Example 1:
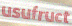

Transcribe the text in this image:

usufruct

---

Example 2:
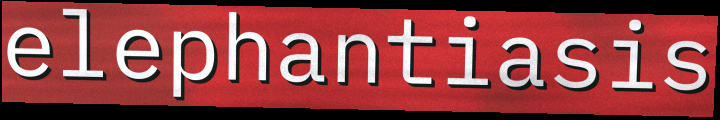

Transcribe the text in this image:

elephantiasis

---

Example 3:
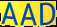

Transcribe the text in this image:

AAD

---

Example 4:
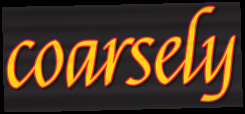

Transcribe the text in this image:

coarsely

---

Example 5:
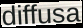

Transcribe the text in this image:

diffusa